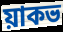
য়াকভ